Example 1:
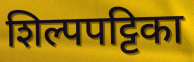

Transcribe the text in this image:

शिल्पपट्टिका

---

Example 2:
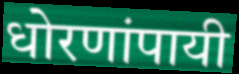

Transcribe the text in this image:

धोरणांपायी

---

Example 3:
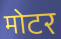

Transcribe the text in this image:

मोटर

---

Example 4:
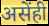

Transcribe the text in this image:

असेंही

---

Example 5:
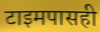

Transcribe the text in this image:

टाइमपासही